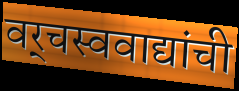
वर्चस्ववाद्यांची